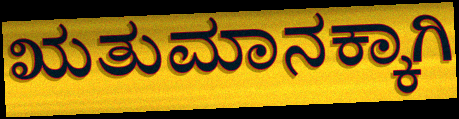
ಋತುಮಾನಕ್ಕಾಗಿ